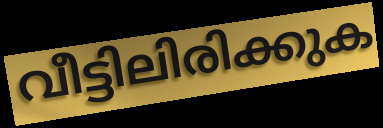
വീട്ടിലിരിക്കുക